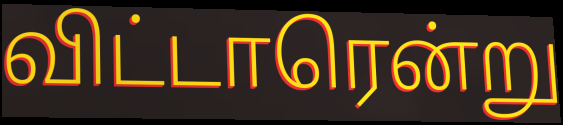
விட்டாரென்று